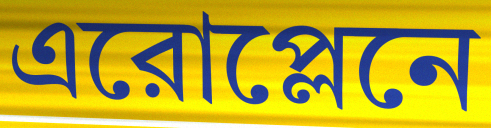
এরোপ্লেনে